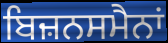
ਬਿਜ਼ਨਸਮੈਨਾਂ